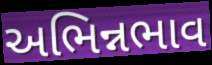
અભિન્નભાવ